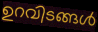
ഉറവിടങ്ങൾ